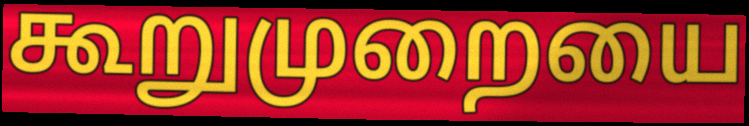
கூறுமுறையை